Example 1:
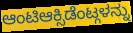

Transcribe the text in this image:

ಆಂಟಿಆಕ್ಸಿಡೆಂಟ್ಗಳನ್ನು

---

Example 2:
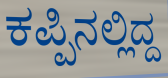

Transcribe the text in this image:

ಕಪ್ಪಿನಲ್ಲಿದ್ದ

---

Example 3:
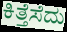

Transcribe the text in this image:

ಕಿತ್ತೆಸೆದು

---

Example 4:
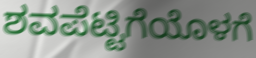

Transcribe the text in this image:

ಶವಪೆಟ್ಟಿಗೆಯೊಳಗೆ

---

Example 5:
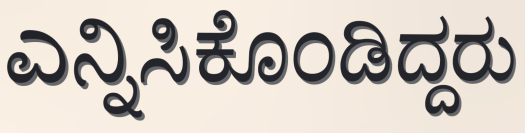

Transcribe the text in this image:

ಎನ್ನಿಸಿಕೊಂಡಿದ್ದರು